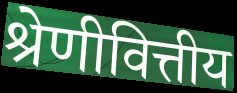
श्रेणीवित्तीय